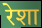
रेशा